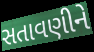
સતાવણીને